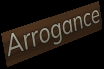
Arrogance